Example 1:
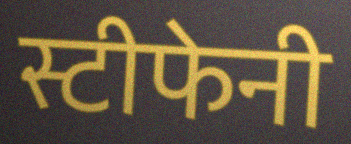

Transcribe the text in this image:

स्टीफेनी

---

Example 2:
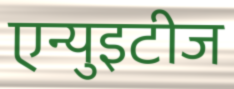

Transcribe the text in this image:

एन्युइटीज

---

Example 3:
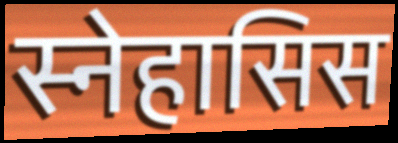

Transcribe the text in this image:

स्नेहासिस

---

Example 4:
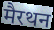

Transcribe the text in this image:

मैरथन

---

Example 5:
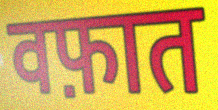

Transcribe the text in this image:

वफ़ात